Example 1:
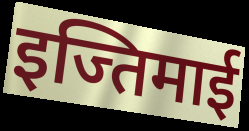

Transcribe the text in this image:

इज्तिमाई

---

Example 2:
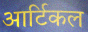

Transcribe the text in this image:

आर्टिकल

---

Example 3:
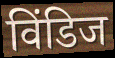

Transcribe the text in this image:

विंडिज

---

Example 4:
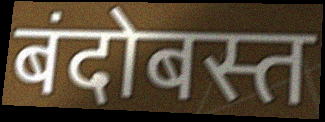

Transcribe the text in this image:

बंदोबस्त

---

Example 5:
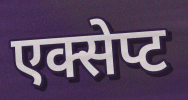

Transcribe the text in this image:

एक्सेप्ट